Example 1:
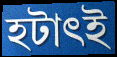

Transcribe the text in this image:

হটাৎই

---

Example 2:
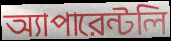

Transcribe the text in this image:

অ্যাপারেন্টলি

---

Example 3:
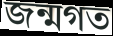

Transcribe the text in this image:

জন্মগত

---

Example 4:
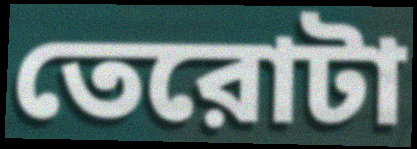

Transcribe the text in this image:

তেরোটা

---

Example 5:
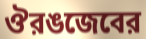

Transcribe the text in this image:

ঔরঙজেবের